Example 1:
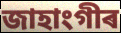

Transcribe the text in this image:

জাহাংগীৰ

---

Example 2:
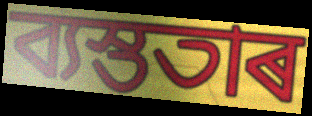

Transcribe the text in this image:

ব্যস্ততাৰ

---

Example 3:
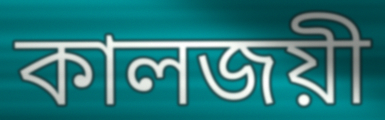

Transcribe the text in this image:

কালজয়ী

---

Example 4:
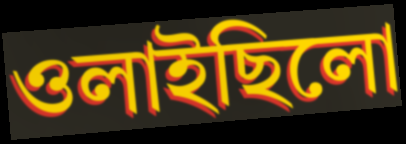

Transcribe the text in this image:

ওলাইছিলো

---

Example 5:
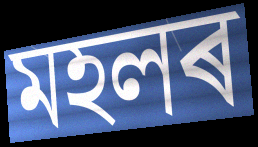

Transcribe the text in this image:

মহলৰ